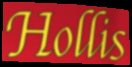
Hollis